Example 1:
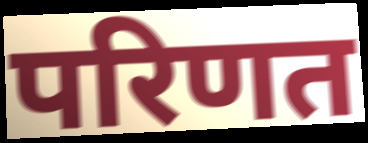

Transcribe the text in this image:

परिणत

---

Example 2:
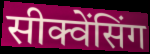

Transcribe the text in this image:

सीक्वेंसिंग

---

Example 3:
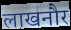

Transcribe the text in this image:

लाखनौर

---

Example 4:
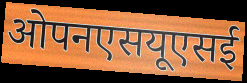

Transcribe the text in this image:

ओपनएसयूएसई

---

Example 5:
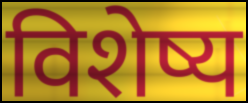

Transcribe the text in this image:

विशेष्य